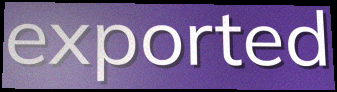
exported